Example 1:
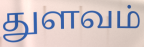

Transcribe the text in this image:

துளவம்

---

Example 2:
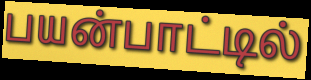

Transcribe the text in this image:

பயன்பாட்டில்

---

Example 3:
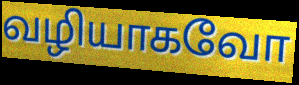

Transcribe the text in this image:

வழியாகவோ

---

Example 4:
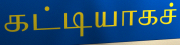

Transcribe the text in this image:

கட்டியாகச்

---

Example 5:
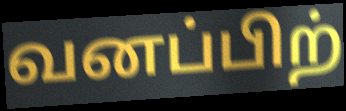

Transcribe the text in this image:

வனப்பிற்